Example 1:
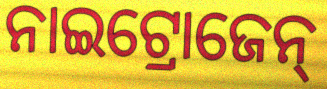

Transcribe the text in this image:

ନାଇଟ୍ରୋଜେନ୍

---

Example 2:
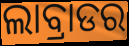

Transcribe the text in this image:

ଲାବ୍ରାଡର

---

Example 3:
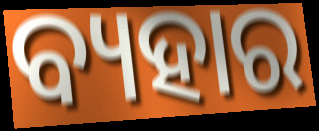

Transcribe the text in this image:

ବ୍ୟହାର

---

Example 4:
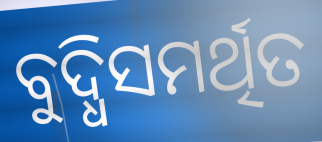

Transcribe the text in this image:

ବୁଦ୍ଧିସମର୍ଥିତ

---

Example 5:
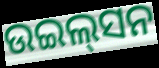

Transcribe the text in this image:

ଉଇଲ୍‌ସନ